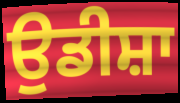
ਉਡੀਸ਼ਾ